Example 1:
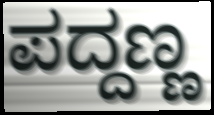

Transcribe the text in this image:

ಪದ್ದಣ್ಣ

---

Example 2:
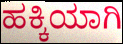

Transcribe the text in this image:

ಹಕ್ಕಿಯಾಗಿ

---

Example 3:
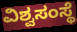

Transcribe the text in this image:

ವಿಶ್ವಸಂಸ್ಥೆ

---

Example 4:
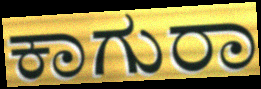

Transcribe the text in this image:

ಕಾಗುರಾ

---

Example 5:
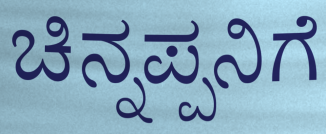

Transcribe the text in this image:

ಚಿನ್ನಪ್ಪನಿಗೆ